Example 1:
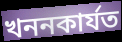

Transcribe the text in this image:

খননকাৰ্যত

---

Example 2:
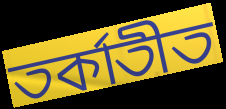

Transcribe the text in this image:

তৰ্কাতীত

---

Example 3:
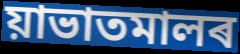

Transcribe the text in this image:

য়াভাতমালৰ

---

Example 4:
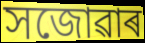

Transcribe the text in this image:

সজোৱাৰ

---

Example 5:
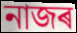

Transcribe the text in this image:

নাজৰ